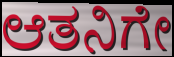
ಆತನಿಗೇ